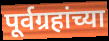
पूर्वग्रहांच्या